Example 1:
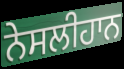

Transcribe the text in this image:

ਨੇਸਲੀਹਾਨ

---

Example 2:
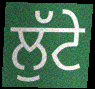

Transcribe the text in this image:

ਲੁੱਟੇ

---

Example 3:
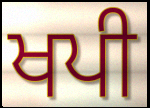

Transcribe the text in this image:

ਖਪੀ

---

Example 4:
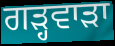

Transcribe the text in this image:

ਗੜ੍ਹਵਾੜਾ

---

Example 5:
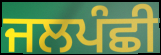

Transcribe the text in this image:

ਜਲਪੰਛੀ